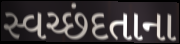
સ્વચ્છંદતાના